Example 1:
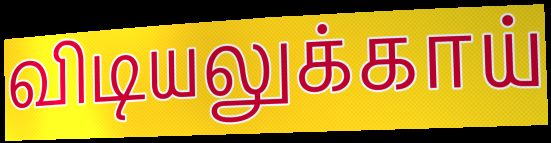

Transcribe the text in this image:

விடியலுக்காய்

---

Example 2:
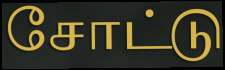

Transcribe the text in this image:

சோட்டு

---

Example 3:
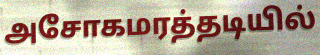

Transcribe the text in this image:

அசோகமரத்தடியில்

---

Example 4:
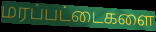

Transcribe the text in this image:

மரப்பட்டைகளை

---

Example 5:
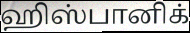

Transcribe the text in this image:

ஹிஸ்பானிக்